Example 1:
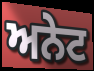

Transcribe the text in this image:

ਅਨੇਟ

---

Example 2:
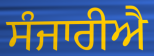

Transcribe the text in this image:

ਸੰਜਾਰੀਐ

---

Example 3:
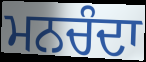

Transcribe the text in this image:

ਮਨਚੰਦਾ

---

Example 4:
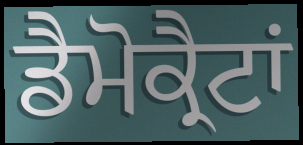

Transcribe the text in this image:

ਡੈਮੋਕ੍ਰੈਟਾਂ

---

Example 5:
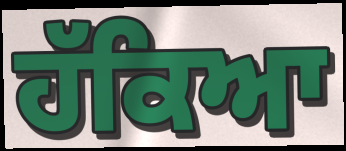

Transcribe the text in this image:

ਹੱਕਿਆ